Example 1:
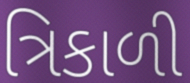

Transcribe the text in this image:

ત્રિકાળી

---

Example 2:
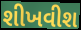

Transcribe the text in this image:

શીખવીશ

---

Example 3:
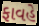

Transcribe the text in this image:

ફાવહે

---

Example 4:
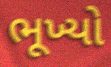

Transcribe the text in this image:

ભૂખ્યો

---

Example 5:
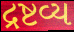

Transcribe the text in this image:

દ્રષ્ટવ્ય